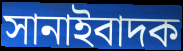
সানাইবাদক